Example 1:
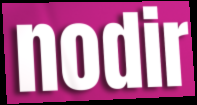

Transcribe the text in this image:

nodir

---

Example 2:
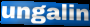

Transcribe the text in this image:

ungalin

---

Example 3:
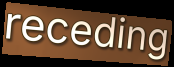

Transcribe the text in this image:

receding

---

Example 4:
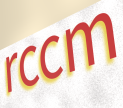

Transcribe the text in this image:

rccm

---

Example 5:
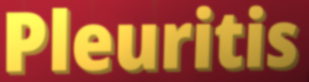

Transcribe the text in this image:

Pleuritis